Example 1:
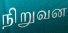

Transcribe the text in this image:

நிறுவன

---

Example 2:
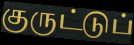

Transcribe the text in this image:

குருட்டுப்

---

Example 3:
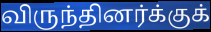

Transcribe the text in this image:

விருந்தினர்க்குக்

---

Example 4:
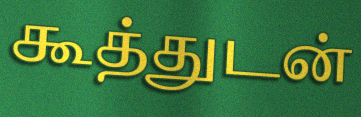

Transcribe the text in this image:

கூத்துடன்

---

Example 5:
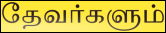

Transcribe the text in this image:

தேவர்களும்